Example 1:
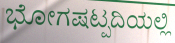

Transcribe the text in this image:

ಭೋಗಷಟ್ಪದಿಯಲ್ಲಿ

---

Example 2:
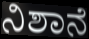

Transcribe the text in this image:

ನಿಶಾನೆ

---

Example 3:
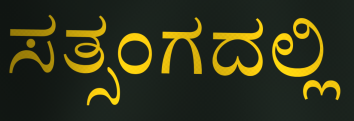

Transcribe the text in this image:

ಸತ್ಸಂಗದಲ್ಲಿ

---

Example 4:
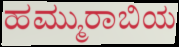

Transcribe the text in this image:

ಹಮ್ಮುರಾಬಿಯ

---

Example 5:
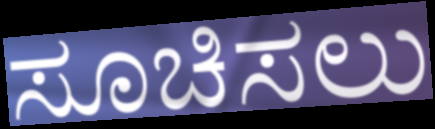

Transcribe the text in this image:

ಸೂಚಿಸಲು